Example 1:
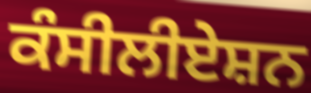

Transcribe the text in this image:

ਕੰਸੀਲੀਏਸ਼ਨ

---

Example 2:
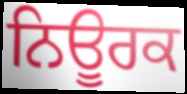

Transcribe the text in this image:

ਨਿਊਰਕ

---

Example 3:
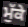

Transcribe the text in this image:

ਮੁੱਕੇ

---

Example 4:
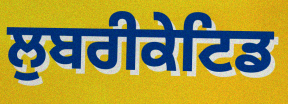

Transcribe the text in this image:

ਲੁਬਰੀਕੇਟਿਡ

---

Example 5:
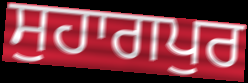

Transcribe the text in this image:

ਸੁਹਾਗਪੁਰ